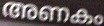
അണകം